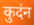
कुदंन